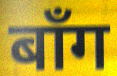
बाँग